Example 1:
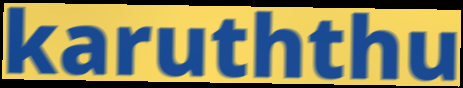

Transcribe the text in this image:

karuththu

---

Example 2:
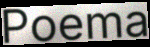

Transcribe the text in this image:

Poema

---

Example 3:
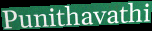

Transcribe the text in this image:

Punithavathi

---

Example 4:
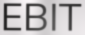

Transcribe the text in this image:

EBIT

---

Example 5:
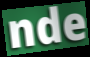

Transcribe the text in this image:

nde